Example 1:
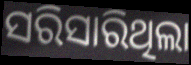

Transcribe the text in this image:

ସରିସାରିଥିଲା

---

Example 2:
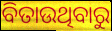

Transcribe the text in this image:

ବିତାଉଥିବାରୁ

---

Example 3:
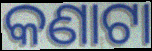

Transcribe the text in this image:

କଣାଟା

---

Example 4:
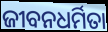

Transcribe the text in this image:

ଜୀବନଧର୍ମିତା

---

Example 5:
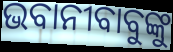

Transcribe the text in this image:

ଭବାନୀବାବୁଙ୍କୁ